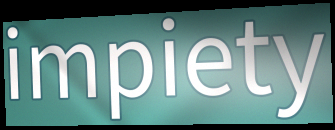
impiety